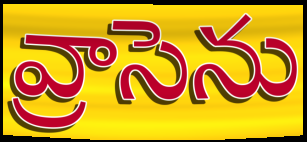
వ్రాసెను